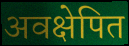
अवक्षेपित